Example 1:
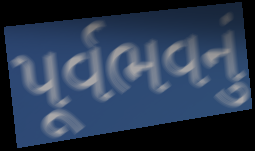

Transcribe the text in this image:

પૂર્વભવનું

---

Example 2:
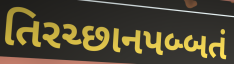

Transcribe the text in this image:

તિરચ્છાનપબ્બતં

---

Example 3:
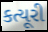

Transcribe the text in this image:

કત્યૂરી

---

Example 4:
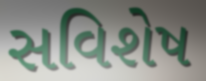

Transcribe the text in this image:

સવિશેષ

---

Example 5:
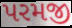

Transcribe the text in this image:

પરમજી